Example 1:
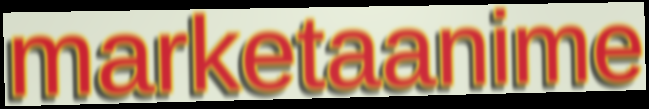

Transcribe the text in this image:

marketaanime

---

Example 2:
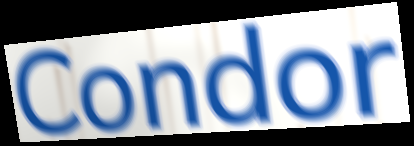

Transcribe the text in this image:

Condor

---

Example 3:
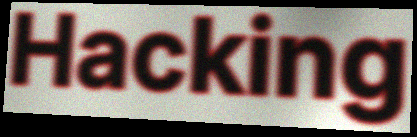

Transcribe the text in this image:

Hacking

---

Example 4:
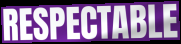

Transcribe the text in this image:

RESPECTABLE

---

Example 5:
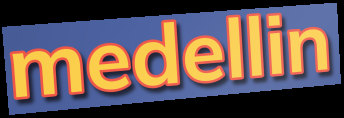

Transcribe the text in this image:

medellin